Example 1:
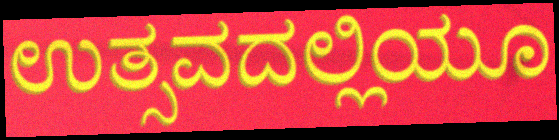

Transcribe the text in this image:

ಉತ್ಸವದಲ್ಲಿಯೂ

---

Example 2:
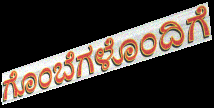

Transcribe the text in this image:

ಗೊಂಬೆಗಳೊಂದಿಗೆ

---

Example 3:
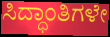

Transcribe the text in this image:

ಸಿದ್ಧಾಂತಿಗಳೇ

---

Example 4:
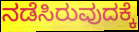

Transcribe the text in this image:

ನಡೆಸಿರುವುದಕ್ಕೆ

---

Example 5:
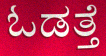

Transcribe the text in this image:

ಓಡತ್ತೆ